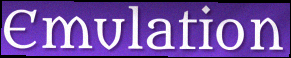
Emulation